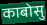
काबोसु